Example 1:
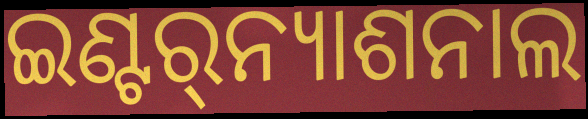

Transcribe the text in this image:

ଇଣ୍ଟର୍‌ନ୍ୟାଶନାଲ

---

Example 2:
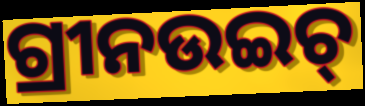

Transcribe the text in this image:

ଗ୍ରୀନଉଇଚ୍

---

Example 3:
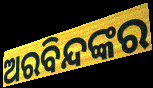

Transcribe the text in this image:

ଅରବିନ୍ଦଙ୍କର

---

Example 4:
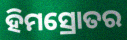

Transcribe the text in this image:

ହିମସ୍ରୋତର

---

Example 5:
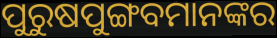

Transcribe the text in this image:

ପୁରୁଷପୁଙ୍ଗବମାନଙ୍କର